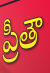
ప్రీతౌ